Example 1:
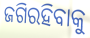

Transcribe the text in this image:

ଜଗିରହିବାକୁ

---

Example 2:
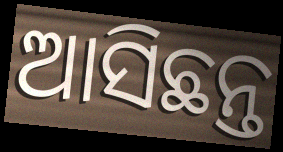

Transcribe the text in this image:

ଆସିଛନ୍ତ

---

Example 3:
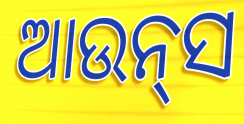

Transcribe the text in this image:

ଆଉନ୍‍ସ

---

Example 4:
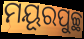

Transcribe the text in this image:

ମୟୂରପୁଚ୍ଛ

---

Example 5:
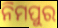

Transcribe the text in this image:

ନିମପୁର